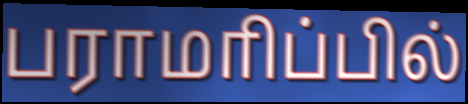
பராமரிப்பில்